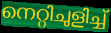
നെറ്റിചുളിച്ച്